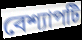
বেশ্যাপটি